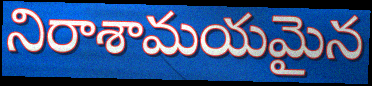
నిరాశామయమైన